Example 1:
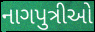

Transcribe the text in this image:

નાગપુત્રીઓ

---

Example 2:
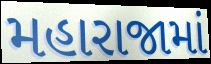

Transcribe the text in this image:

મહારાજામાં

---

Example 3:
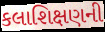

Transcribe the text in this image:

કલાશિક્ષણની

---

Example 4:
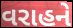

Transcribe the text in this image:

વરાહને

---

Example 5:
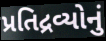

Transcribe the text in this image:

પ્રતિદ્રવ્યોનું